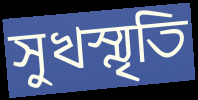
সুখস্মৃতি